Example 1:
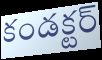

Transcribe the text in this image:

కండక్టర్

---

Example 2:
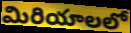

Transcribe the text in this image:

మిరియాలలో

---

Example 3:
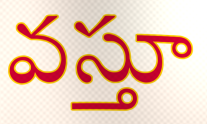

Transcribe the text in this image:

వస్తూ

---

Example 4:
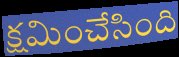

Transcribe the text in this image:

క్షమించేసింది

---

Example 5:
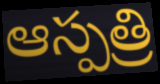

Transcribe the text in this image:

ఆస్పత్రి